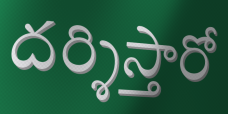
దర్శిస్తారో